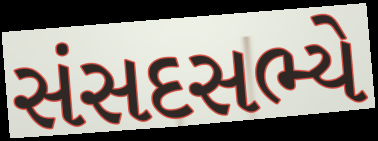
સંસદસભ્યે